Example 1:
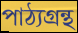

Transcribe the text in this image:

পাঠ্যগ্রন্থ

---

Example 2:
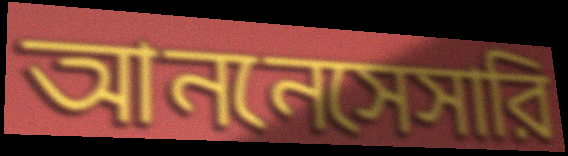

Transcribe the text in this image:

আননেসেসারি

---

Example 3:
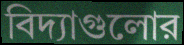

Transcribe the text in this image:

বিদ্যাগুলোর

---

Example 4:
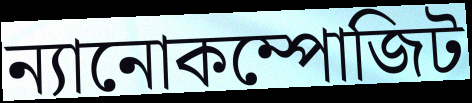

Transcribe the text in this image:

ন্যানোকম্পোজিট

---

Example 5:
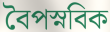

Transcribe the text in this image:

বৈপস্নবিক